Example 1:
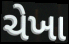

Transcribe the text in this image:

ચેખા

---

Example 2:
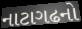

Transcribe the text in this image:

નાટાગઢનો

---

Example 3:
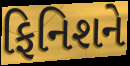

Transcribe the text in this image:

ફિનિશને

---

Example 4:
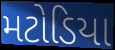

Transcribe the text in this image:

મટોડિયા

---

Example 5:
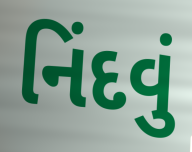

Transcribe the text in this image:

નિંદવું